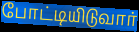
போட்டியிடுவார்